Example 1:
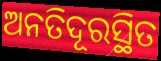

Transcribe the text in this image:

ଅନତିଦୂରସ୍ଥିତ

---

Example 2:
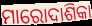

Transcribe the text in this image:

ମାରୋଦାଶିକା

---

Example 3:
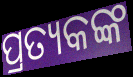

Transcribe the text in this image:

ପ୍ରତ୍ୟକଙ୍କ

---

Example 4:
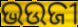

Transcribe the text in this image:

ଭଉଜୀ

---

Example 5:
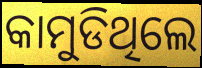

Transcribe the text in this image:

କାମୁଡିଥିଲେ